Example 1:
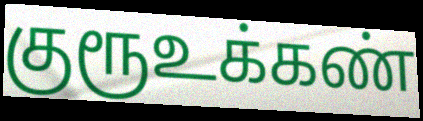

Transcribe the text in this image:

குரூஉக்கண்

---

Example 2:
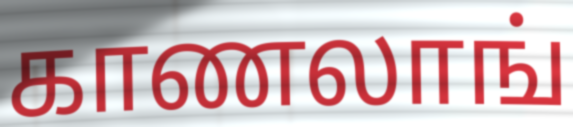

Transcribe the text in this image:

காணலாங்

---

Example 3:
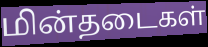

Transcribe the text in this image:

மின்தடைகள்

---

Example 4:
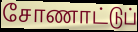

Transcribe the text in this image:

சோணாட்டுப்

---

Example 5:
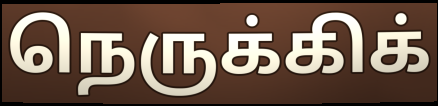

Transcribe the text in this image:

நெருக்கிக்